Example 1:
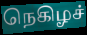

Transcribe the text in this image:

நெகிழச்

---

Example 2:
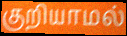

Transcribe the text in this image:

குறியாமல்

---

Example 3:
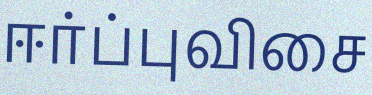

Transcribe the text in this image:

ஈர்ப்புவிசை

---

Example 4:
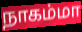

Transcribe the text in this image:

நாகம்மா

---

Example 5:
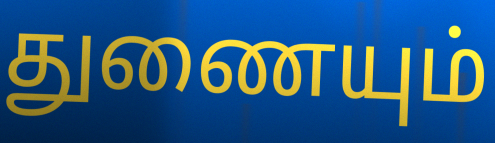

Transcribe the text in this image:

துணையும்